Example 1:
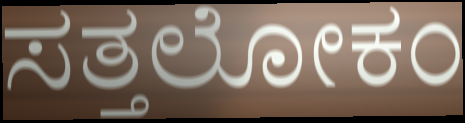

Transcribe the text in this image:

ಸತ್ತಲೋಕಂ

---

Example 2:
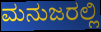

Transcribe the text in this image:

ಮನುಜರಲ್ಲಿ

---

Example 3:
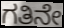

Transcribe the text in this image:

ಗತಿನೇ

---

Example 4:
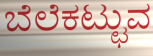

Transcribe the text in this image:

ಬೆಲೆಕಟ್ಟುವ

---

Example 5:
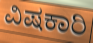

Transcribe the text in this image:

ವಿಷಕಾರಿ